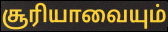
சூரியாவையும்